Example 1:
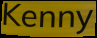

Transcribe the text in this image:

Kenny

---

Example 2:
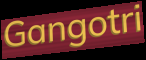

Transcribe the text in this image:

Gangotri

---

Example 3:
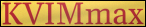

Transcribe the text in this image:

KVIMmax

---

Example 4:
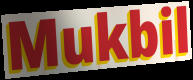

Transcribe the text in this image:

Mukbil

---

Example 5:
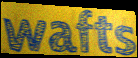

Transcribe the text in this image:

wafts